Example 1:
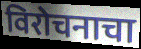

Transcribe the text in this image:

विरोचनाचा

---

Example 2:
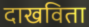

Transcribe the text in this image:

दाखविता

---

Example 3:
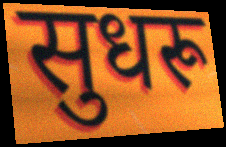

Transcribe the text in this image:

सुधरू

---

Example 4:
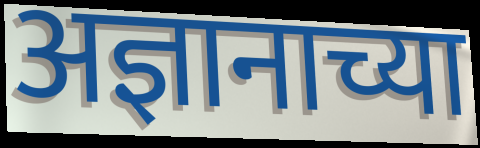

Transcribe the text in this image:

अज्ञानाच्या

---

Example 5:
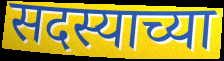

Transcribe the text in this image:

सदस्याच्या